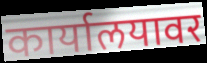
कार्यालयावर